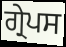
ਗ੍ਰੇਪਸ